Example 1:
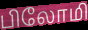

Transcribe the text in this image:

பிலோமி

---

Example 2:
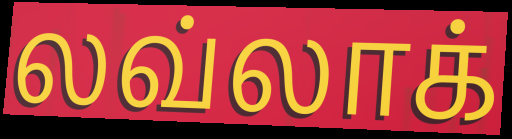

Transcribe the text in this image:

லவ்லாக்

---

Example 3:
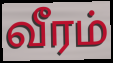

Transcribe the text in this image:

வீரம்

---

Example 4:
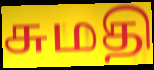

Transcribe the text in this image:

சுமதி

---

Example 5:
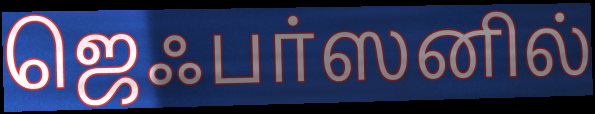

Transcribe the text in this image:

ஜெஃபர்ஸனில்